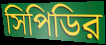
সিপিডির